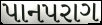
પાનપરાગ